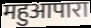
महुआपारा